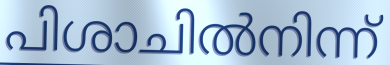
പിശാചിൽനിന്ന്